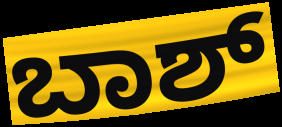
ಬಾಶ್